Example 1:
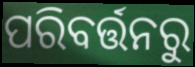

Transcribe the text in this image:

ପରିବର୍ତ୍ତନରୁ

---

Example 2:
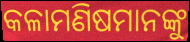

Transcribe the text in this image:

କଳାମଣିଷମାନଙ୍କୁ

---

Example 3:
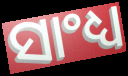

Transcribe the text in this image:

ସାଂଧ୍ୟ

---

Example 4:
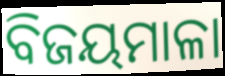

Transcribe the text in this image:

ବିଜୟମାଳା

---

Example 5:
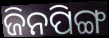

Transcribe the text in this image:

ଜିନପିଙ୍ଗ